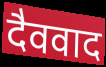
दैववाद